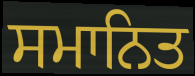
ਸਮਾਨਿਤ